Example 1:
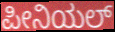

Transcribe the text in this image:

ಪೀನಿಯಲ್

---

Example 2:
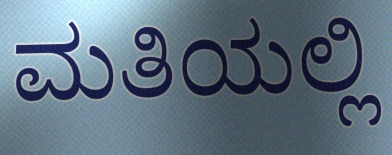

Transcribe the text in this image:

ಮತಿಯಲ್ಲಿ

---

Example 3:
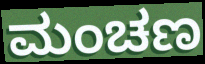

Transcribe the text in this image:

ಮಂಚಣ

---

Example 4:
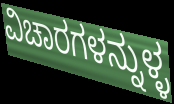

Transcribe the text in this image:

ವಿಚಾರಗಳನ್ನುಳ್ಳ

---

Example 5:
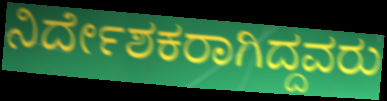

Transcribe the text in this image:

ನಿರ್ದೇಶಕರಾಗಿದ್ದವರು